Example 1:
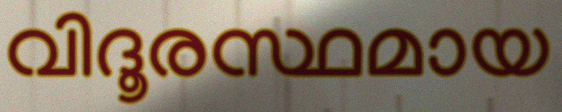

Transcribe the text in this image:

വിദൂരസ്ഥമായ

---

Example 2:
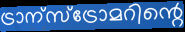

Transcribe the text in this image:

ട്രാന്സ്ട്രോമറിന്റെ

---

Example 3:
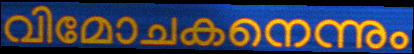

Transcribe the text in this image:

വിമോചകനെന്നും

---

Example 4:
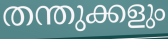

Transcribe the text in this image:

തന്തുക്കളും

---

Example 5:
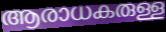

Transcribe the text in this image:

ആരാധകരുള്ള